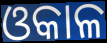
ଓକାଳ